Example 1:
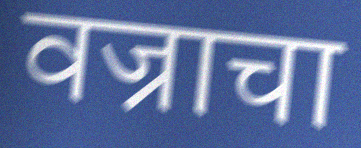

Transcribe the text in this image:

वज्राचा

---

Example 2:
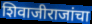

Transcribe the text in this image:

शिवाजीराजांचा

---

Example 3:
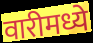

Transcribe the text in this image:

वारीमध्ये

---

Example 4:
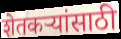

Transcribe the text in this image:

शेतकर्‍यांसाठी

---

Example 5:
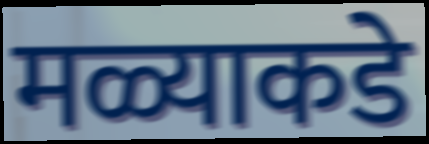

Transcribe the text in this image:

मळ्याकडे